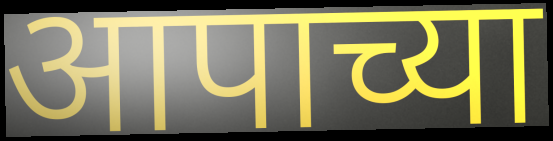
आपाच्या